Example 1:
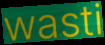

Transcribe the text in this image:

wasti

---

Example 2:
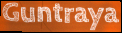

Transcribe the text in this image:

Guntraya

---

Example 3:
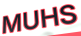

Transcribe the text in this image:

MUHS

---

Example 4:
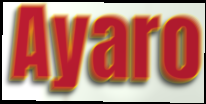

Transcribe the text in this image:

Ayaro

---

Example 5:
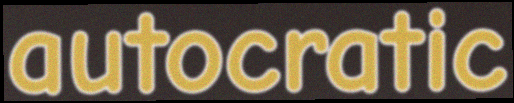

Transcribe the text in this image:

autocratic